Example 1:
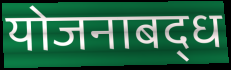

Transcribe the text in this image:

योजनाबद्ध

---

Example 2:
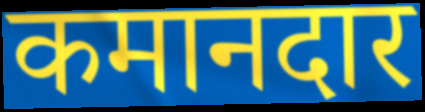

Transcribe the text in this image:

कमानदार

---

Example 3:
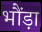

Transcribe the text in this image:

भौंड़ा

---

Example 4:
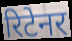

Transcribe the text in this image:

रिटेनर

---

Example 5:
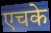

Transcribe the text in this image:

एचके